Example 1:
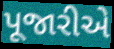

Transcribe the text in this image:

પૂજારીએ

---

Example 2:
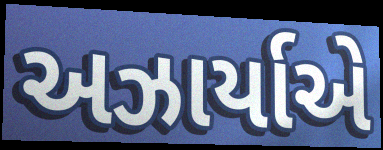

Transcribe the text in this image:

અઝાર્યાએ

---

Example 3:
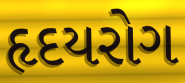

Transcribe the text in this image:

હૃદયરોગ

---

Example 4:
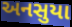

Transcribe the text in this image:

અનસુયા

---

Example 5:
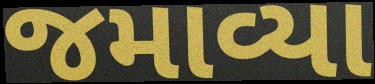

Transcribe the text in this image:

જમાવ્યા